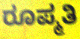
ರೂಪ್ಮತಿ